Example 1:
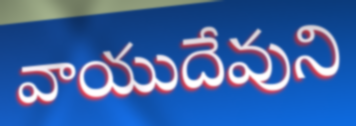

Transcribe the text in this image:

వాయుదేవుని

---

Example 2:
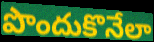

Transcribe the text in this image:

పొందుకొనేలా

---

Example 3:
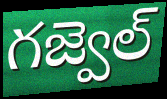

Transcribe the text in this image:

గజ్వెల్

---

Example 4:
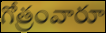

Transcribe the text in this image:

గోత్రంవారూ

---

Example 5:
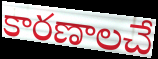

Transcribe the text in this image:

కారణాలచే